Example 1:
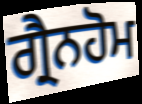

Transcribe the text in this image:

ਗ੍ਰੈਨਹੋਮ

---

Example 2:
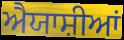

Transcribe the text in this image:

ਐਯਾਸ਼ੀਆਂ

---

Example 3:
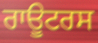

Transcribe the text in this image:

ਰਾਊਟਰਸ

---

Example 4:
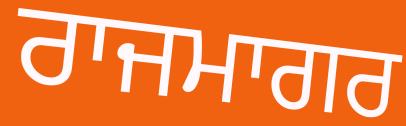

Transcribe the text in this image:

ਰਾਜਮਾਗਰ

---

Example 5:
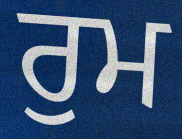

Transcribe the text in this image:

ਰੁਮ